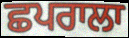
ਛਪਰਾਲਾ